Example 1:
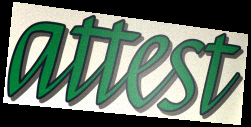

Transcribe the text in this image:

attest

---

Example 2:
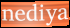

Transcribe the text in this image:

nediya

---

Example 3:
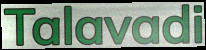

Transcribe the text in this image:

Talavadi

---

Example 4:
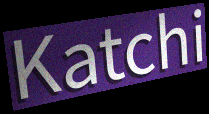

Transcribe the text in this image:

Katchi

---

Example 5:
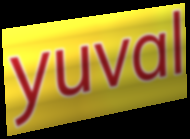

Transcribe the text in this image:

yuval